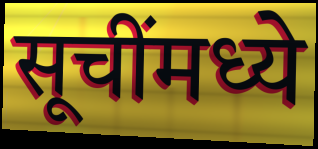
सूचींमध्ये